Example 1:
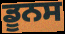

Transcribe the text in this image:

ਡੂਨਸ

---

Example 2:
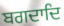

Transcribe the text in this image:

ਬਗਦਾਦਿ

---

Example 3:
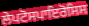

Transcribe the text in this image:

ਲੇਪਟੋਸਪਾਇਰੋਸਿਸ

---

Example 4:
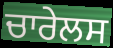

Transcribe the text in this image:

ਚਾਰੇਲਸ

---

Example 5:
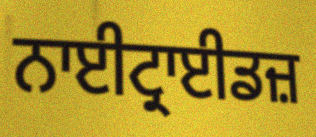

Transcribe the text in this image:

ਨਾਈਟ੍ਰਾਈਡਜ਼